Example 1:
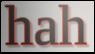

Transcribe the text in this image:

hah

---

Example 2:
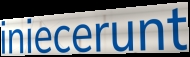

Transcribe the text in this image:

iniecerunt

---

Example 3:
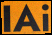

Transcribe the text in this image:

IAi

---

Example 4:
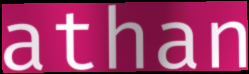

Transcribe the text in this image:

athan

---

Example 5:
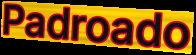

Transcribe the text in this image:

Padroado